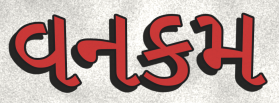
વનકમ